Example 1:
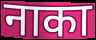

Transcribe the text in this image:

नाका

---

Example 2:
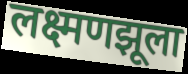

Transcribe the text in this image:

लक्ष्मणझूला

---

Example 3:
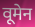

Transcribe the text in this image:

वूमेन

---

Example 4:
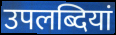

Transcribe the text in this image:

उपलब्दियां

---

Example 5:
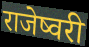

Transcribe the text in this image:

राजेष्वरी